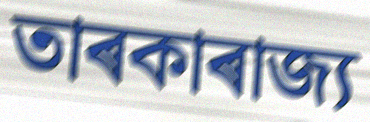
তাৰকাৰাজ্য